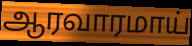
ஆரவாரமாய்